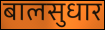
बालसुधार